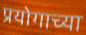
प्रयोगाच्या